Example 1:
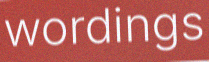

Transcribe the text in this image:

wordings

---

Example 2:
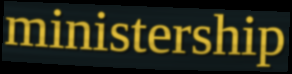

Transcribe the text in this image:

ministership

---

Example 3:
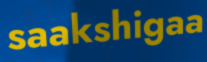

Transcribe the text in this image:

saakshigaa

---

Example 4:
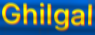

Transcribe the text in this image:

Ghilgal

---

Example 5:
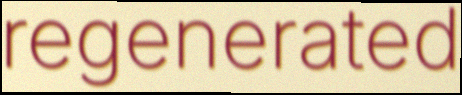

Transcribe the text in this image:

regenerated